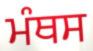
ਮੰਥਸ